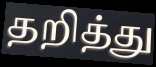
தறித்து